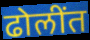
ढोलींत